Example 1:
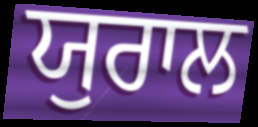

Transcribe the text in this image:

ਯੁਰਾਲ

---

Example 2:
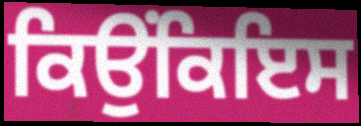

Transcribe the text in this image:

ਕਿਉਂਕਿਇਸ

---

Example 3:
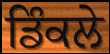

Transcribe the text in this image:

ਡਿੰਕਲੇ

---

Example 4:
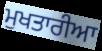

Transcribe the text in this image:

ਮੁਖਤਾਰੀਆ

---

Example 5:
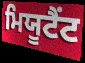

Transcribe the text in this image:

ਮਿਯੂਟੈਂਟ